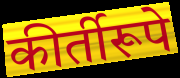
कीर्तीरूपे